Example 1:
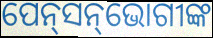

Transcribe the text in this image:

ପେନ୍‌ସନ୍‌ଭୋଗୀଙ୍କ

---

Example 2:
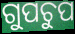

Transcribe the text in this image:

ଗୁପଚୁପ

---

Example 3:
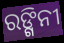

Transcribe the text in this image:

ରଙ୍ଗିନୀ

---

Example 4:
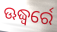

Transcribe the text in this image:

ଊଦ୍ଧ୍ୱର୍ରେ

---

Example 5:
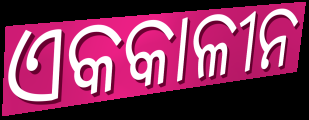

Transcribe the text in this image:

ଏକକାଳୀନ